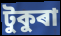
টুকুৰা